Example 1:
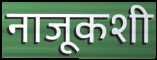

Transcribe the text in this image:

नाजूकशी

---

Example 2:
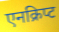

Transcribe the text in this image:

एनक्रिप्ट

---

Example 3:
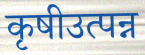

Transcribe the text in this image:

कृषीउत्पन्न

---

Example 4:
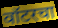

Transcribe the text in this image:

वॉटरचा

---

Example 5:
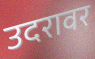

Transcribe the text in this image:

उदरावर